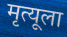
मृत्यूला